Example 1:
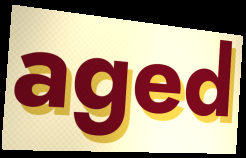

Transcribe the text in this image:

aged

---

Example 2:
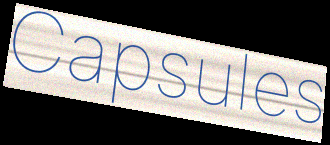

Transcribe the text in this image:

Capsules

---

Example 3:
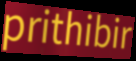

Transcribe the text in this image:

prithibir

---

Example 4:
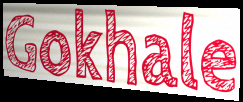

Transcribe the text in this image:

Gokhale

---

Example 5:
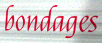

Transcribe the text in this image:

bondages